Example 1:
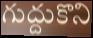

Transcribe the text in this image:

గుద్దుకొని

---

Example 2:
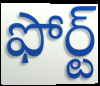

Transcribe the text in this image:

ఫోర్ట్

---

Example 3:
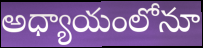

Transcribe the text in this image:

అధ్యాయంలోనూ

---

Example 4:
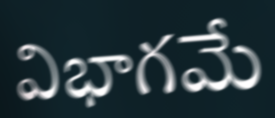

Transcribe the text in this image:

విభాగమే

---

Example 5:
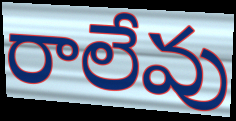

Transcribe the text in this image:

రాలేవు